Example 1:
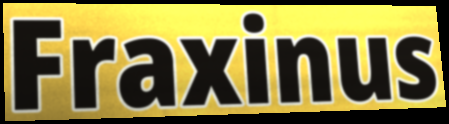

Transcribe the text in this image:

Fraxinus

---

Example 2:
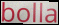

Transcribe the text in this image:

bolla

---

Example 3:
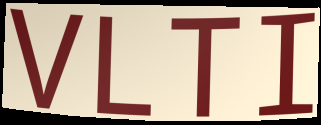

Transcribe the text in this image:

VLTI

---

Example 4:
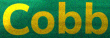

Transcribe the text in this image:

Cobb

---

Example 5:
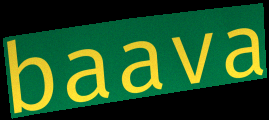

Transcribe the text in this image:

baava